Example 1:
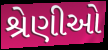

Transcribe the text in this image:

શ્રેણીઓ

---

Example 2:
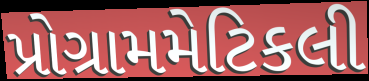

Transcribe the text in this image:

પ્રોગ્રામમેટિકલી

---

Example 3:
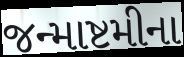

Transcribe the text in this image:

જન્માષ્ટમીના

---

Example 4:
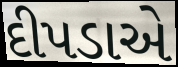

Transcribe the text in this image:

દીપડાએ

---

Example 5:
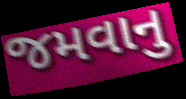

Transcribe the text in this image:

જમવાનુ